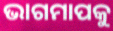
ଭାଗମାପକୁ